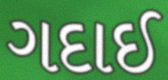
ગદાઈ